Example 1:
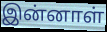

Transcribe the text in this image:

இன்னாள்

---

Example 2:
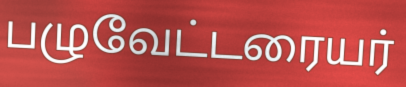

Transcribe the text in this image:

பழுவேட்டரையர்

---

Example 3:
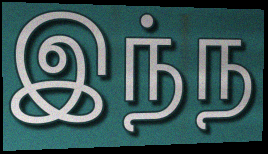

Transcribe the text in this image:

இந்ந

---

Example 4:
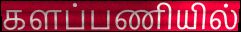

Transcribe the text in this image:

களப்பணியில்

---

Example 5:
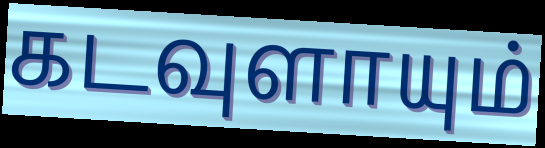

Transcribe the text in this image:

கடவுளாயும்